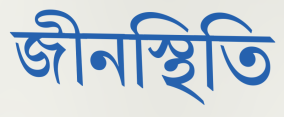
জীনস্থিতি